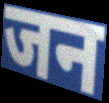
जन